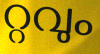
റ്റവും